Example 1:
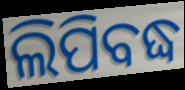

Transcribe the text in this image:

ଲିପିବଦ୍ଧ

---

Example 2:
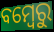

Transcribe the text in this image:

ବମ୍ବେରୁ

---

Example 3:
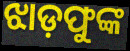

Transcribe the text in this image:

ଝାଡ଼ଫୁଙ୍କ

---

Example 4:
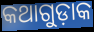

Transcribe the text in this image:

କଥାଗୁଡ଼ାକ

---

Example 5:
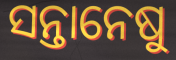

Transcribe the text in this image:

ସନ୍ତାନେଷୁ